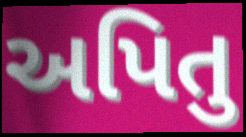
અપિતુ